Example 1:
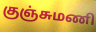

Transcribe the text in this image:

குஞ்சுமணி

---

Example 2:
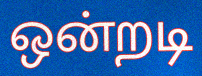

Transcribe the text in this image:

ஒன்றடி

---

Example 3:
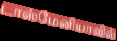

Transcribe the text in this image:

டாஸ்மேனியாவில்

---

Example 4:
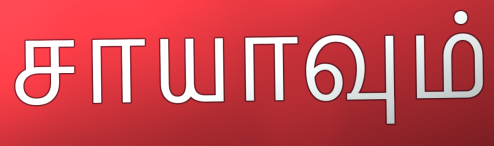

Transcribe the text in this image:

சாயாவும்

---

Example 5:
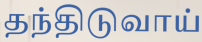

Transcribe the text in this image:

தந்திடுவாய்